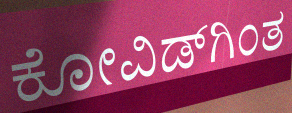
ಕೋವಿಡ್‌ಗಿಂತ